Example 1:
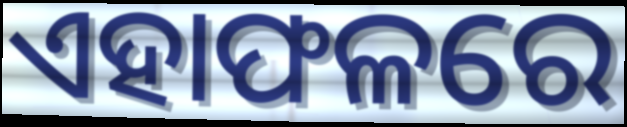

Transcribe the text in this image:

ଏହାଫଳରେ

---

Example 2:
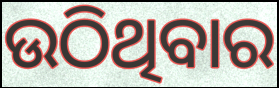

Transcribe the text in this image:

ଉଠିଥିବାର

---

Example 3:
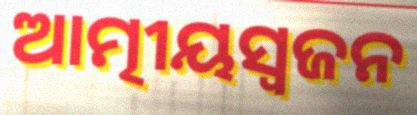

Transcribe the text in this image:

ଆତ୍ମୀୟସ୍ୱଜନ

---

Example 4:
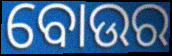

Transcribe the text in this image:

ବୋଉର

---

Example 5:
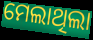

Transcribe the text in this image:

ମେଲାଥିଲା